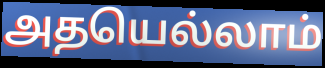
அதயெல்லாம்